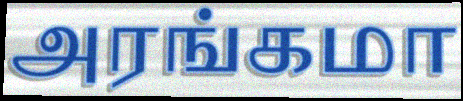
அரங்கமா